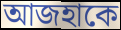
আজহাকে